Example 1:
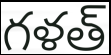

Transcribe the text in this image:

గళత్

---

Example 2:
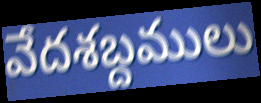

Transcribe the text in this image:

వేదశబ్దములు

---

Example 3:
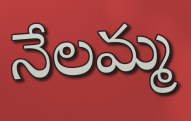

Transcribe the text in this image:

నేలమ్మ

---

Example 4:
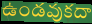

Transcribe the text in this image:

ఉండవుకదా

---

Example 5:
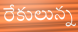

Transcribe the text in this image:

రేకులున్న